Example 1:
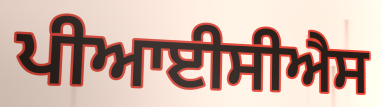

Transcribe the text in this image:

ਪੀਆਈਸੀਐਸ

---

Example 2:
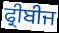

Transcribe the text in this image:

ਫ੍ਰੀਬੀਜ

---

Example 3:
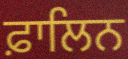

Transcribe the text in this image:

ਫ਼ਾਲਿਨ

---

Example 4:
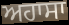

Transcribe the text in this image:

ਅਹਾਸਾ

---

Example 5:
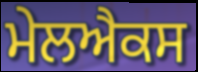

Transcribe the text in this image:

ਮੇਲਐਕਸ